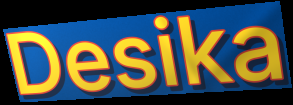
Desika